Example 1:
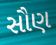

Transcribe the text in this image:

સૌણ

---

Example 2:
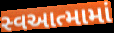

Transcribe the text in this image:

સ્વઆત્મામાં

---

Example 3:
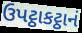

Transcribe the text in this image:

ઉપટ્ઠાકટ્ઠાનં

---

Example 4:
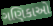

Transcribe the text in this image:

ગણિકાઓ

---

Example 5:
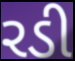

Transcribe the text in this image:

રડી